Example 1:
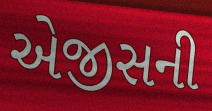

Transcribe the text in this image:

એજીસની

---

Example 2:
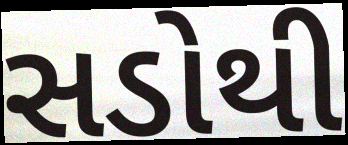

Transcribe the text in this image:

સડોથી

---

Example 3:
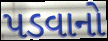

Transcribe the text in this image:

પડવાનો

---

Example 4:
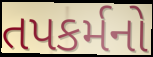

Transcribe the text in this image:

તપકર્મનો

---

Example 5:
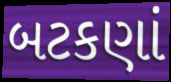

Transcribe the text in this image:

બટકણાં